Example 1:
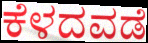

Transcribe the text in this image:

ಕೆಳದವಡೆ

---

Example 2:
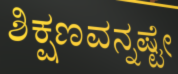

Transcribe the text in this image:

ಶಿಕ್ಷಣವನ್ನಷ್ಟೇ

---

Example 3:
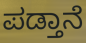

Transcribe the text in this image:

ಪಡ್ತಾನೆ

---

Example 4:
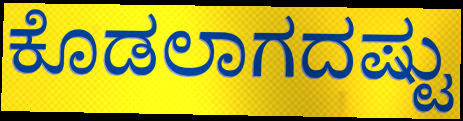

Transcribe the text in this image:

ಕೊಡಲಾಗದಷ್ಟು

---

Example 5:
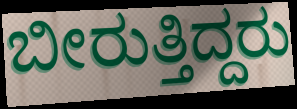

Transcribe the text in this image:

ಬೀರುತ್ತಿದ್ದರು